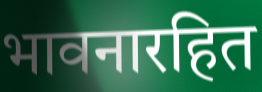
भावनारहित